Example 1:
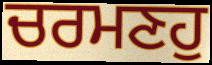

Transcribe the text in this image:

ਚਰਮਣਹੁ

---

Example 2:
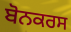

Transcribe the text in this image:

ਬੋਨਕਰਸ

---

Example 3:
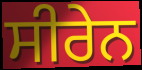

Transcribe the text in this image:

ਸੀਰੇਨ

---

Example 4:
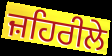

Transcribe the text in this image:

ਜ਼ਹਿਰੀਲੇ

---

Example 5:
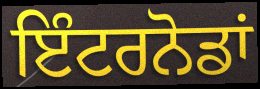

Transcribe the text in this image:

ਇੰਟਰਨੋਡਾਂ